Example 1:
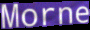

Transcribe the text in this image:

Morne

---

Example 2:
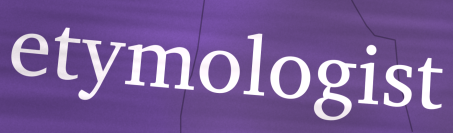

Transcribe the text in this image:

etymologist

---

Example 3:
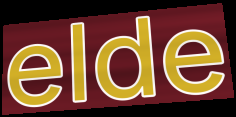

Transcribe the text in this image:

elde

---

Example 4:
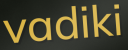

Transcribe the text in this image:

vadiki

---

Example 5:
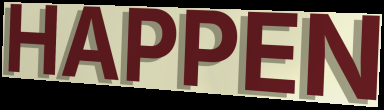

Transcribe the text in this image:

HAPPEN